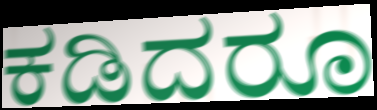
ಕಡಿದರೂ